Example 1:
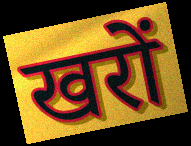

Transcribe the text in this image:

खरों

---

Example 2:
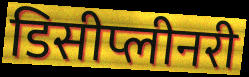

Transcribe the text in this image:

डिसीप्लीनरी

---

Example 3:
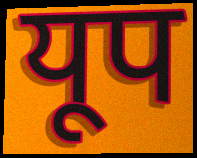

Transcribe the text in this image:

यूप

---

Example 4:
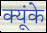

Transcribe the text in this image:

क्यूंके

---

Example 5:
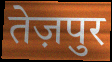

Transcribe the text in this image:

तेज़पुर